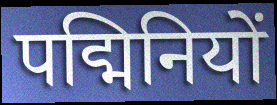
पद्मिनियों